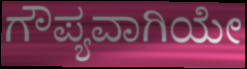
ಗೌಪ್ಯವಾಗಿಯೇ